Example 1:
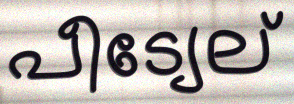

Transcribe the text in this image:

പീട്യേല്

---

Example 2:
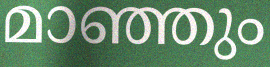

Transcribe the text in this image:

മാഞ്ഞും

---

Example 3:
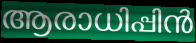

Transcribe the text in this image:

ആരാധിപ്പിൻ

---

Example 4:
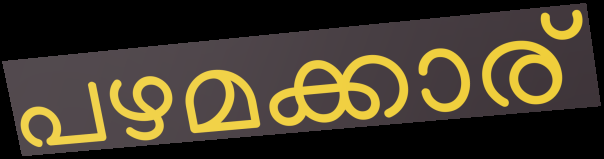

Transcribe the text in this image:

പഴമക്കാര്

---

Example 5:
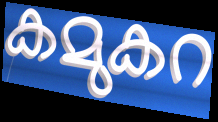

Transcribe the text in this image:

കമുകറ